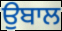
ਉਬਾਲ